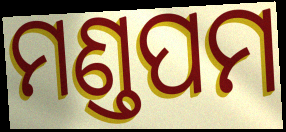
ମଣ୍ଡପମ